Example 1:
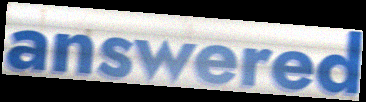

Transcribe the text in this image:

answered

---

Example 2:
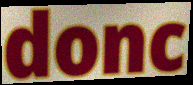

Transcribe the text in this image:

donc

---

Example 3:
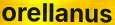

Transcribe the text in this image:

orellanus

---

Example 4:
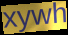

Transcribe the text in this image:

xywh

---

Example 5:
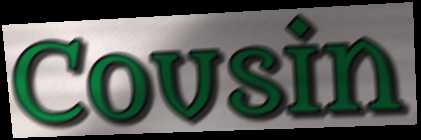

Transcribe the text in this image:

Cousin